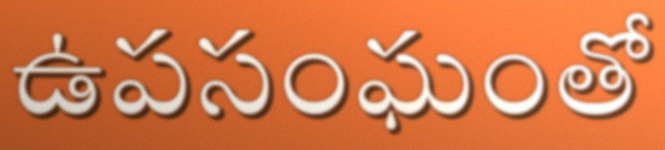
ఉపసంఘంతో